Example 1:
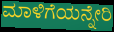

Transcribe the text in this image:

ಮಾಳಿಗೆಯನ್ನೇರಿ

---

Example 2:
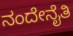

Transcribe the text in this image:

ನಂದೇನೈತಿ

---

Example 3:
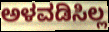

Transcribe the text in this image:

ಅಳವಡಿಸಿಲ್ಲ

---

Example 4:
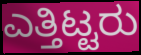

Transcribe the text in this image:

ಎತ್ತಿಟ್ಟರು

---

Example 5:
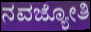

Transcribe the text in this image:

ನವಜ್ಯೋತಿ